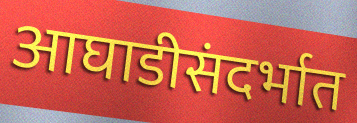
आघाडीसंदर्भात